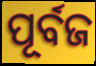
ପୂର୍ବଜ